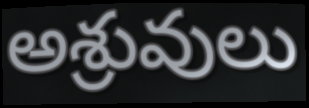
అశ్రువులు